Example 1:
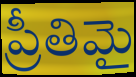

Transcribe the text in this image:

ప్రీతిమై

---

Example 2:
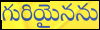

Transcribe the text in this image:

గురియైనను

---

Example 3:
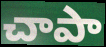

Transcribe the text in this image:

చాపా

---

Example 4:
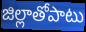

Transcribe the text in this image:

జిల్లాతోపాటు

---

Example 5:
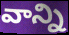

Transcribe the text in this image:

వాన్ని